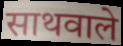
साथवाले